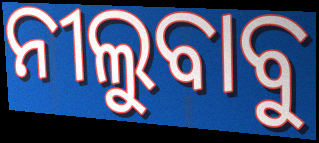
ନୀଲୁବାବୁ